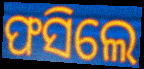
ଫସିଲେ